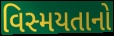
વિસ્મયતાનો